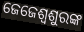
ଜେଜେଶ୍ୱଶୁରଙ୍କ